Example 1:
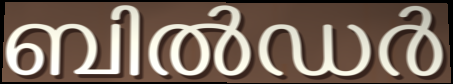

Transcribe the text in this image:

ബിൽഡർ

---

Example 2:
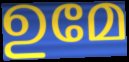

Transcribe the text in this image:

ഉമേ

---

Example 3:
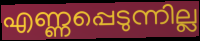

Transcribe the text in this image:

എണ്ണപ്പെടുന്നില്ല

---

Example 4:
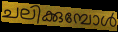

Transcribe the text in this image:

ചലിക്കുമ്പോൾ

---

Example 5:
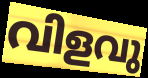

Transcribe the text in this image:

വിളവു